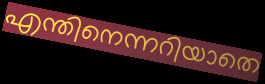
എന്തിനെന്നറിയാതെ